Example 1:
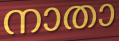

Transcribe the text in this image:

നാതാ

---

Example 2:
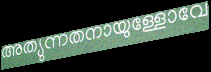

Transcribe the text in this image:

അത്യുന്നതനായുള്ളോവേ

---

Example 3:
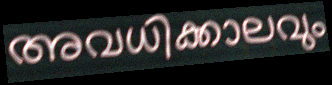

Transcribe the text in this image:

അവധിക്കാലവും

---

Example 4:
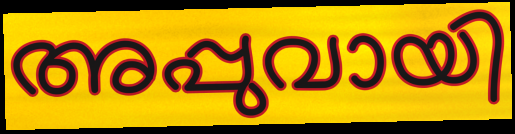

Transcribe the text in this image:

അപ്പുവായി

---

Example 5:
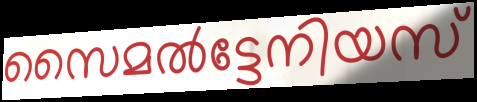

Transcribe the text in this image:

സൈമൽട്ടേനിയസ്